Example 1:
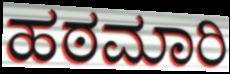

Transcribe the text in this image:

ಹಠಮಾರಿ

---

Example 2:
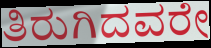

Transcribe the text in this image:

ತಿರುಗಿದವರೇ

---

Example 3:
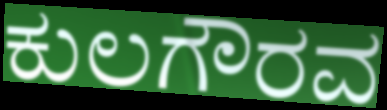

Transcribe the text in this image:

ಕುಲಗೌರವ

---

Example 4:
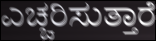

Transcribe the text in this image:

ಎಚ್ಚರಿಸುತ್ತಾರೆ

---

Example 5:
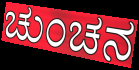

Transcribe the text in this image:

ಚುಂಚನ